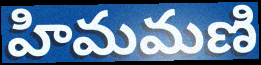
హిమమణి